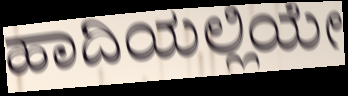
ಹಾದಿಯಲ್ಲಿಯೇ